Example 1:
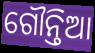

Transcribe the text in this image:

ଗୌନ୍ତିଆ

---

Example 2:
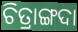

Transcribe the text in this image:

ଚିତ୍ରାଙ୍ଗଦା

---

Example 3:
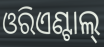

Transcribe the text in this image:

ଓରିଏଣ୍ଟାଲ୍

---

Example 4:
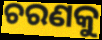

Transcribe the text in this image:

ଚରଣକୁ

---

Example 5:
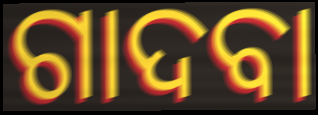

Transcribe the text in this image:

ଗାଦବା